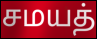
சமயத்